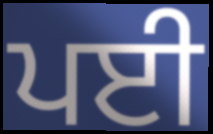
ਪਈ